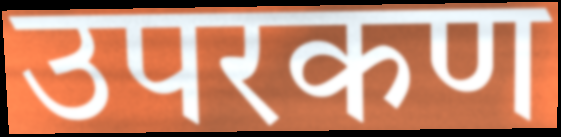
उपरकण